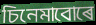
চিনেমাবোৰে